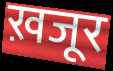
ख़जूर